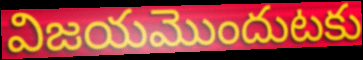
విజయమొందుటకు